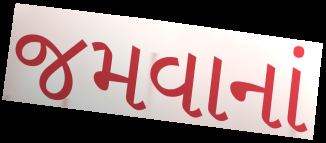
જમવાનાં